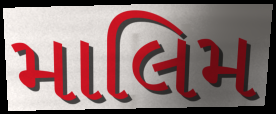
માલિમ